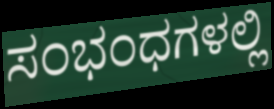
ಸಂಭಂಧಗಳಲ್ಲಿ